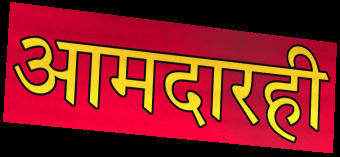
आमदारही